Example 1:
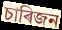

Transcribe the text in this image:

চাৰিজন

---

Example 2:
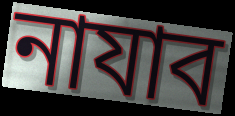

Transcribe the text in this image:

নাযাব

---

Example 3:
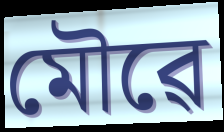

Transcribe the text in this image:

মৌৱে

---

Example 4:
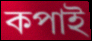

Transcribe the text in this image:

কপাই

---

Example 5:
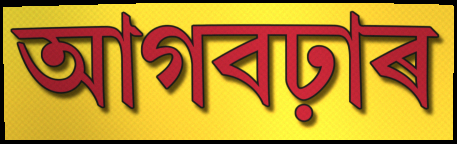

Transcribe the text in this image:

আগবঢ়াৰ